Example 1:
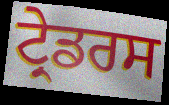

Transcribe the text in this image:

ਟ੍ਰੇਡਰਸ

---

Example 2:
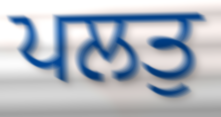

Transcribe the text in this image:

ਪਲਤੁ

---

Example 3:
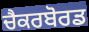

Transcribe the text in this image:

ਚੈਕਰਬੋਰਡ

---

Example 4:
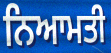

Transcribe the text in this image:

ਨਿਆਮਤੀ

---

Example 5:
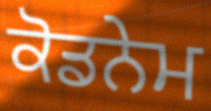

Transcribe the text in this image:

ਕੋਡਨੇਮ